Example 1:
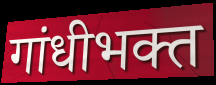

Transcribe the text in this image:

गांधीभक्त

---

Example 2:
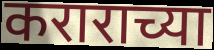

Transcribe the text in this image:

कराराच्या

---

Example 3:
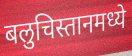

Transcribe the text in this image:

बलुचिस्तानमध्ये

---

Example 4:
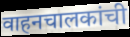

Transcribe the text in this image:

वाहनचालकांची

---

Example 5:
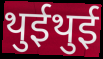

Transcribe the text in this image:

थुईथुई